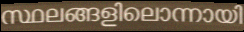
സ്ഥലങ്ങളിലൊന്നായി